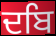
ਦਬਿ